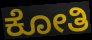
ಕೋತಿ